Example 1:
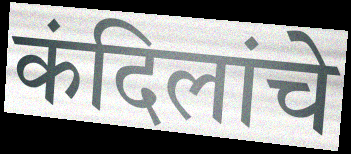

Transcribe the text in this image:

कंदिलांचे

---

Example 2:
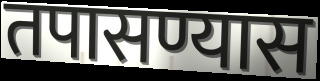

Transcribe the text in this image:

तपासण्यास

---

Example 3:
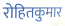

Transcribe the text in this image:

रोहितकुमार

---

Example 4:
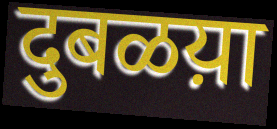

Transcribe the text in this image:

दुबळय़ा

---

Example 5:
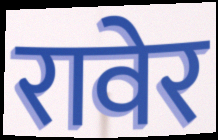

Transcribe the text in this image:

रावेर